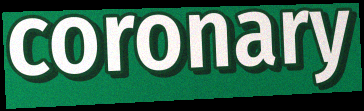
coronary